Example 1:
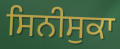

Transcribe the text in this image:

ਸਿਨੀਸੁਕਾ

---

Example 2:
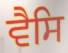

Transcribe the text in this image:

ਵੈਸਿ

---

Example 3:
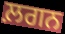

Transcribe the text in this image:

ਲ਼ਗਨ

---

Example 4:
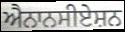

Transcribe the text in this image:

ਐਨਾਨਸੀਏਸ਼ਨ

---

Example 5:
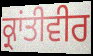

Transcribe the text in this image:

ਕ੍ਰਾਂਤੀਵੀਰ